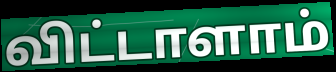
விட்டாளாம்